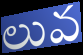
లువ